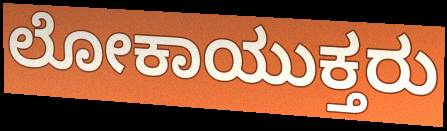
ಲೋಕಾಯುಕ್ತರು